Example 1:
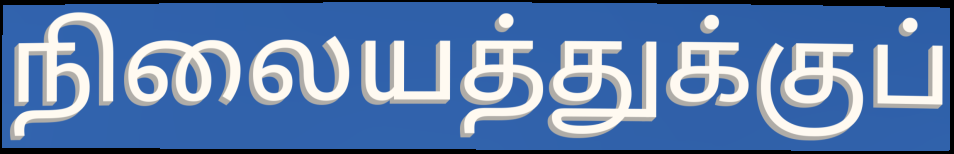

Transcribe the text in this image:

நிலையத்துக்குப்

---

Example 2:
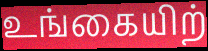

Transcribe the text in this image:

உங்கையிற்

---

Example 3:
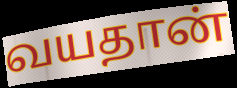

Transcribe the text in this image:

வயதான்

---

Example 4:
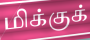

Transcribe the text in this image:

மிக்குக்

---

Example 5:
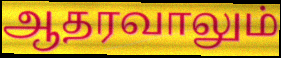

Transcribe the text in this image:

ஆதரவாலும்